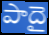
పాదై